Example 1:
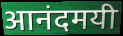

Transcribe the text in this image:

आनंदमयी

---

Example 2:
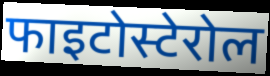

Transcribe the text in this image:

फाइटोस्टेरोल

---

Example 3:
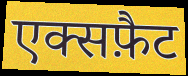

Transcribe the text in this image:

एक्सफ़ैट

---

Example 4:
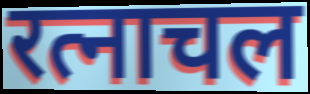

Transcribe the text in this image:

रत्नाचल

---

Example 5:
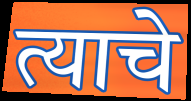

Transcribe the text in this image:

त्याचे